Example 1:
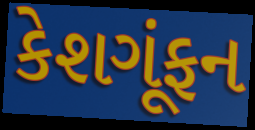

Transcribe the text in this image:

કેશગૂંફન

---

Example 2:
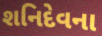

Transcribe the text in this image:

શનિદેવના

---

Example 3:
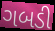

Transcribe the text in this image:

ગબડી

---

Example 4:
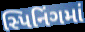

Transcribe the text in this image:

સ્પિનિંગમાં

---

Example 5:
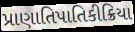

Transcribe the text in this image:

પ્રાણાતિપાતિકીક્રિયા